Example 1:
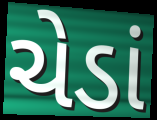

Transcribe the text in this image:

ચેડાં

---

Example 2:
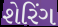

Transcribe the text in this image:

શેરિંગ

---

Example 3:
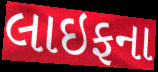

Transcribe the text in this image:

લાઇફના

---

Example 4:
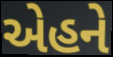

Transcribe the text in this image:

એહને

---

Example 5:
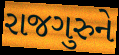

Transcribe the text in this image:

રાજગુરુને